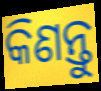
କିଣନ୍ତୁ